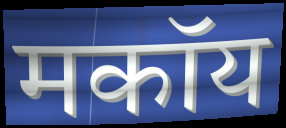
मकॉय